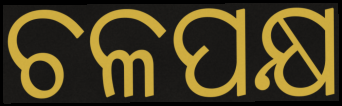
ଚଳପକ୍ଷ